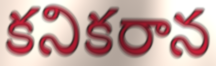
కనికరాన